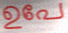
ഉപേ